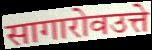
सागारोवउत्ते